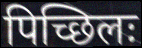
पिच्छिलः